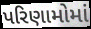
પરિણામોમાં